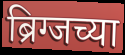
ब्रिग्जच्या